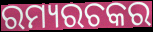
ରମ୍ୟରଚକର